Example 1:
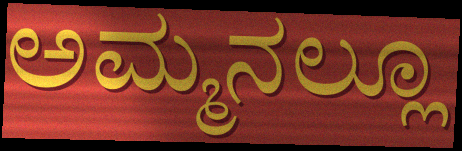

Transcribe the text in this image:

ಅಮ್ಮನಲ್ಲೂ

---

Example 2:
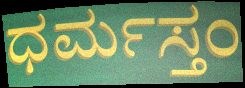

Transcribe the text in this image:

ಧರ್ಮಸ್ತಂ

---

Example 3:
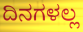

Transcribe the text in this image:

ದಿನಗಳಲ್ಲ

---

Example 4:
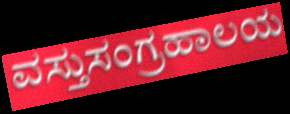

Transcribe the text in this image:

ವಸ್ತುಸಂಗ್ರಹಾಲಯ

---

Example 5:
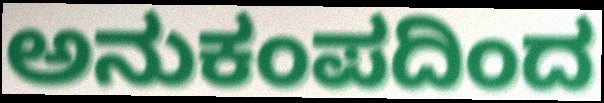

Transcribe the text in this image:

ಅನುಕಂಪದಿಂದ